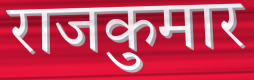
राजकुमार